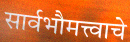
सार्वभौमत्त्वाचे